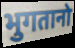
भुगतानो